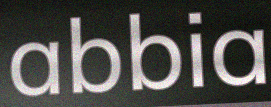
abbia